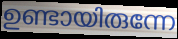
ഉണ്ടായിരുന്നേ